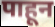
पाहून